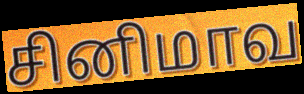
சினிமாவ